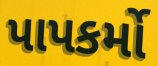
પાપકર્મો